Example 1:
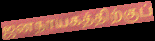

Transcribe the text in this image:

ஜனநாயகத்திற்குப்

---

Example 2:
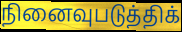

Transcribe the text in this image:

நினைவுபடுத்திக்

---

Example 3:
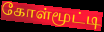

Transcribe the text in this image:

கோள்மூட்டி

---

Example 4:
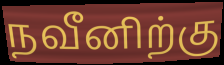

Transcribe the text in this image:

நவீனிற்கு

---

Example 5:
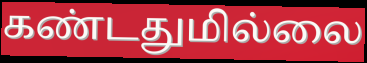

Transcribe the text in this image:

கண்டதுமில்லை